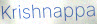
Krishnappa